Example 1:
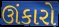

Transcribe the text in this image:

ઊંકારો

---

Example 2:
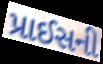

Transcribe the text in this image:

પ્રાઈસની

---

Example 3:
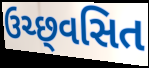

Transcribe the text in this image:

ઉચ્છ્‌વસિત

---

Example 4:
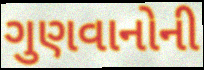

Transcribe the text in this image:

ગુણવાનોની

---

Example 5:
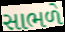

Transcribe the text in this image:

સાભળે